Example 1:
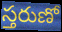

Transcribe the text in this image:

స్తరుణో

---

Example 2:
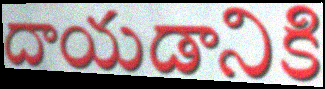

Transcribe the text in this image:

దాయడానికి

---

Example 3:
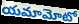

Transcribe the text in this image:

యమామోటో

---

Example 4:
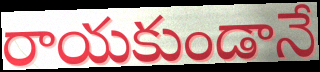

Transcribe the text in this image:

రాయకుండానే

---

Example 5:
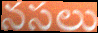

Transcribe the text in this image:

నసలు